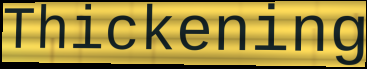
Thickening